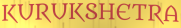
KURUKSHETRA